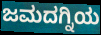
ಜಮದಗ್ನಿಯ